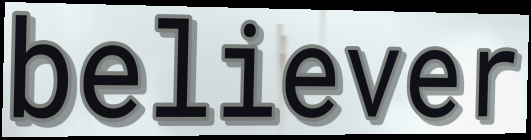
believer